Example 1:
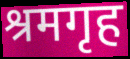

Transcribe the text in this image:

श्रमगृह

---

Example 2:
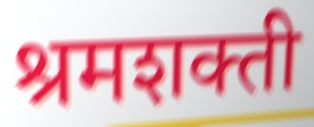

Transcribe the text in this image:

श्रमशक्ती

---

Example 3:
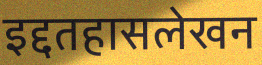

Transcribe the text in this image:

इद्दतहासलेखन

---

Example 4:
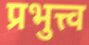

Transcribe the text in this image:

प्रभुत्त्व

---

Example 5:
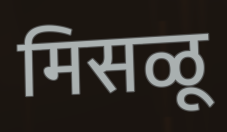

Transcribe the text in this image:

मिसळू